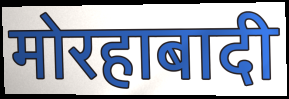
मोरहाबादी